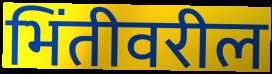
भिंतीवरील